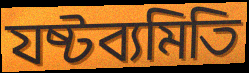
যষ্টব্যমিতি